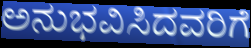
ಅನುಭವಿಸಿದವರಿಗೆ